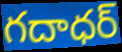
గదాధర్